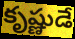
కృష్ణుడే